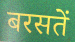
बरसतें